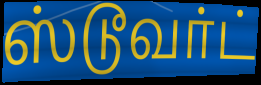
ஸ்டூவர்ட்